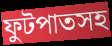
ফুটপাতসহ